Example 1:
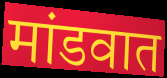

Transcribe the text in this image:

मांडवात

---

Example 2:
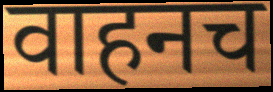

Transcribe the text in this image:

वाहनच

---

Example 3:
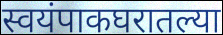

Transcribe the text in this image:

स्वयंपाकघरातल्या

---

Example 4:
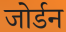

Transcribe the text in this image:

जोर्डन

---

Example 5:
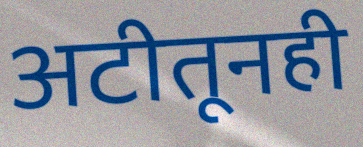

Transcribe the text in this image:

अटीतूनही